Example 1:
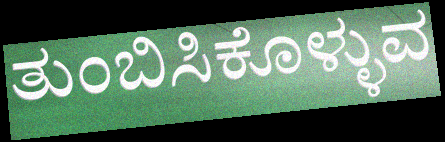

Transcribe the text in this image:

ತುಂಬಿಸಿಕೊಳ್ಳುವ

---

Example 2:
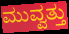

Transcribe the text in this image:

ಮುವ್ವತ್ತು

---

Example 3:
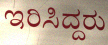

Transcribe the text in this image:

ಇರಿಸಿದ್ದರು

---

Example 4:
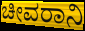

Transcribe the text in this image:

ಚೀವರಾನಿ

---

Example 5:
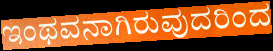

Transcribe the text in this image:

ಇಂಥವನಾಗಿರುವುದರಿಂದ